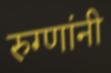
रुग्णांनी